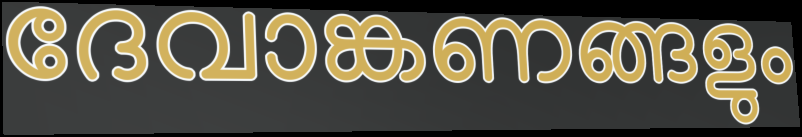
ദേവാങ്കണങ്ങളും